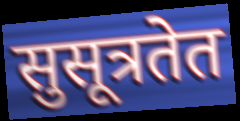
सुसूत्रतेत